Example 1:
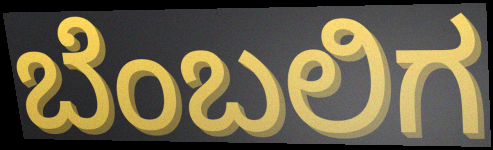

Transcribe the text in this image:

ಬೆಂಬಲಿಗ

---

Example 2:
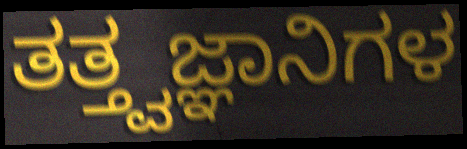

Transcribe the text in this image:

ತತ್ತ್ವಜ್ಞಾನಿಗಳ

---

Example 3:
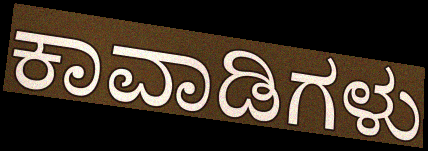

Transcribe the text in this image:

ಕಾವಾಡಿಗಳು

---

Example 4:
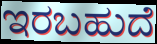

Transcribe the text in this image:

ಇರಬಹುದೆ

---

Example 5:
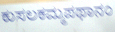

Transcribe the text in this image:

ಕುಸಲಕಮ್ಮಪಥಾನಂ